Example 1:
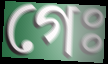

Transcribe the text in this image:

গেঃ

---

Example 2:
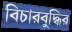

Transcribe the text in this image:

বিচারবুদ্ধির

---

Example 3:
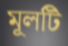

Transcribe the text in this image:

মূলটি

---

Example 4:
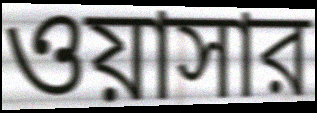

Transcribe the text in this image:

ওয়াসার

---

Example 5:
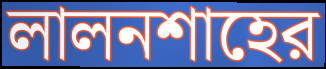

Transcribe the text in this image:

লালনশাহের